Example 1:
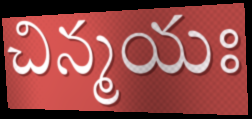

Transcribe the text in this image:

చిన్మయః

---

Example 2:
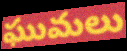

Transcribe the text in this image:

ఘుమలు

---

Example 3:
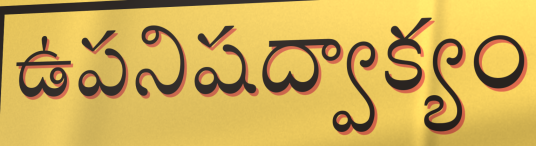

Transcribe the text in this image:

ఉపనిషద్వాక్యం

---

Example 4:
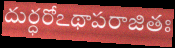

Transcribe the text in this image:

దుర్ధరోఽథాపరాజితః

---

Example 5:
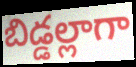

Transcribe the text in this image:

బిడ్డల్లాగా